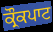
ਕ੍ਰੌਕਪਾਟ